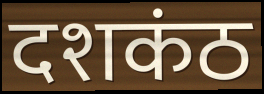
दशकंठ